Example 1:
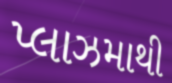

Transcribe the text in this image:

પ્લાઝમાથી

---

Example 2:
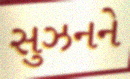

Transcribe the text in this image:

સુઝનને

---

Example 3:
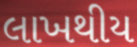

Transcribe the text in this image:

લાખથીય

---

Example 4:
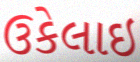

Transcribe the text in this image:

ઉકેલાઇ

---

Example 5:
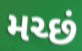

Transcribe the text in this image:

મચ્છં